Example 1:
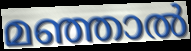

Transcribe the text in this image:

മഞ്ഞാൽ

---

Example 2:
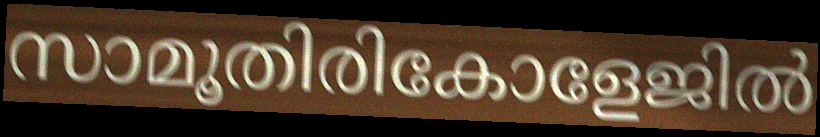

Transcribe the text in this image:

സാമൂതിരികോളേജിൽ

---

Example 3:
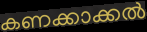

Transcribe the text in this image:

കണക്കാക്കൽ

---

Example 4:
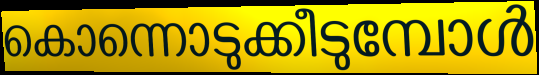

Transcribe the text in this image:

കൊന്നൊടുക്കീടുമ്പോൾ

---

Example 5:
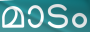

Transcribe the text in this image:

മാടം